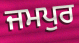
ਜਮਪੁਰ